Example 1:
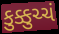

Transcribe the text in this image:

કુક્કુચ્ચં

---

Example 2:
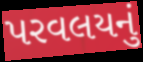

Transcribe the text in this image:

પરવલયનું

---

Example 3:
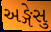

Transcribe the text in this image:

અઙ્ગેસુ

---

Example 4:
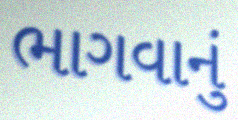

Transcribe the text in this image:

ભાગવાનું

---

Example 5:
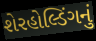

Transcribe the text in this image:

શેરહોલ્ડિંગનું